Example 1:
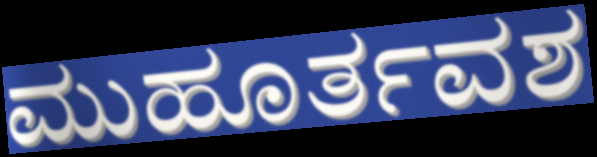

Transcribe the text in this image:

ಮುಹೂರ್ತವಶ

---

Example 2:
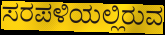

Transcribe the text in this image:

ಸರಪಳಿಯಲ್ಲಿರುವ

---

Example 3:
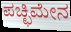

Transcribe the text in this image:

ಪಚ್ಛಿಮೇನ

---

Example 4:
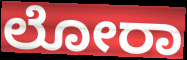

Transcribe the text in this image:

ಲೋರಾ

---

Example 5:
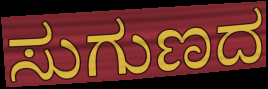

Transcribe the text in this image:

ಸುಗುಣದ